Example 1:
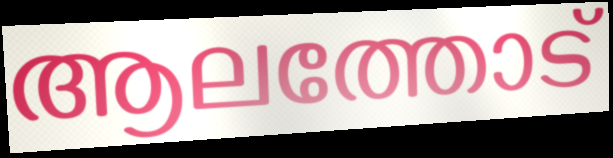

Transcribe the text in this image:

ആലത്തോട്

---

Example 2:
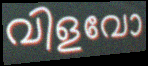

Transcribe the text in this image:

വിളവോ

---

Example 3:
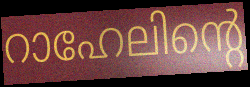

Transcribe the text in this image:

റാഹേലിന്റെ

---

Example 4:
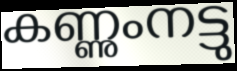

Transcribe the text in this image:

കണ്ണുംനട്ടു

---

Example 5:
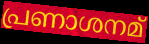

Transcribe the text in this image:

പ്രണാശനമ്